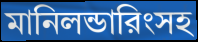
মানিলন্ডারিংসহ